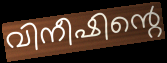
വിനീഷിന്റെ